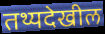
तथ्यदेखील